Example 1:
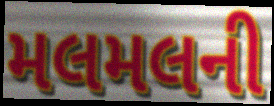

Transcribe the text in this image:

મલમલની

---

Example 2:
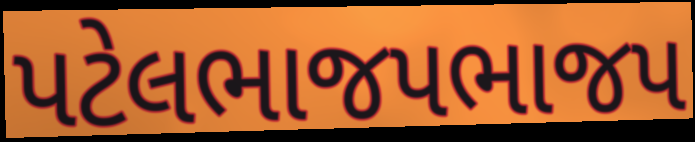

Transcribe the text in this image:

પટેલભાજપભાજપ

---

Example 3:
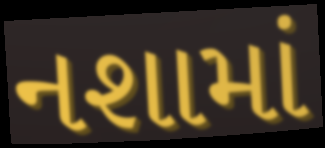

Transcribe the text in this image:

નશામાં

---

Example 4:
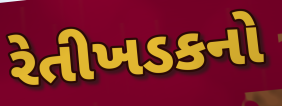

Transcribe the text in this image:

રેતીખડકનો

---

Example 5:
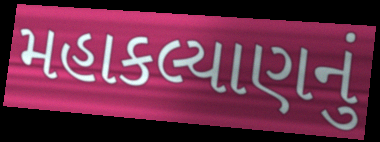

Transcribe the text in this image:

મહાકલ્યાણનું